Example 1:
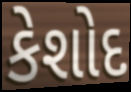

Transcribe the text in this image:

કેશોદ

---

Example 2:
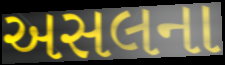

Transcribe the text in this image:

અસલના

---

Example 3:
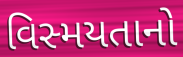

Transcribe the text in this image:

વિસ્મયતાનો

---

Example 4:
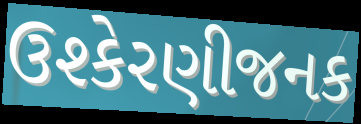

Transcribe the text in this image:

ઉશ્કેરણીજનક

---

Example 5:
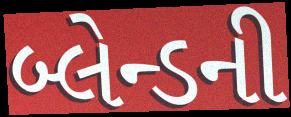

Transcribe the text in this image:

બ્લેન્ડની